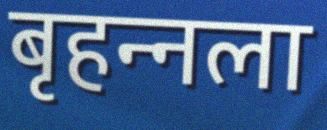
बृहन्नला